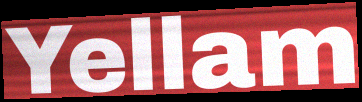
Yellam